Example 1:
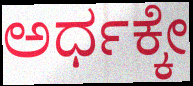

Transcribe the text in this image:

ಅರ್ಧಕ್ಕೇ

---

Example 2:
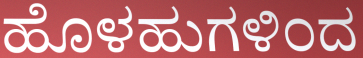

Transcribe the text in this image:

ಹೊಳಹುಗಳಿಂದ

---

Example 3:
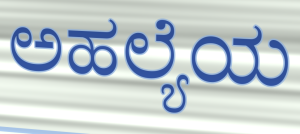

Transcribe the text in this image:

ಅಹಲ್ಯೆಯ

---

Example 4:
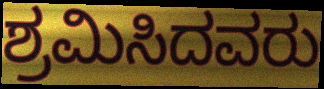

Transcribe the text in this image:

ಶ್ರಮಿಸಿದವರು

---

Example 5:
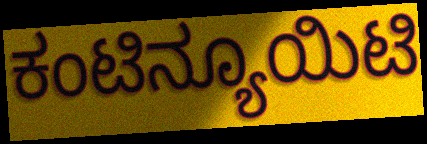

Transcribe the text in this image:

ಕಂಟಿನ್ಯೂಯಿಟಿ